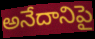
అనేదానిపై